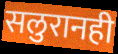
सलुरानही